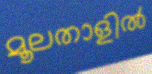
മൂലതാളിൽ